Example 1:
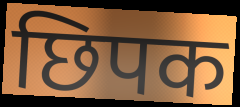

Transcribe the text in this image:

छिपक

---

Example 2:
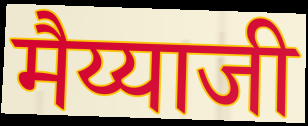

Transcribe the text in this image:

मैय्याजी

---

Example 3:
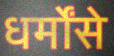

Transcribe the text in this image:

धर्मोंसे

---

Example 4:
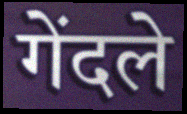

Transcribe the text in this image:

गेंदले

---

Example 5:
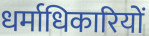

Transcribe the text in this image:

धर्माधिकारियों